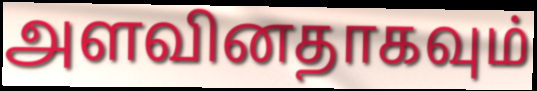
அளவினதாகவும்